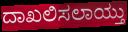
ದಾಖಲಿಸಲಾಯ್ತು